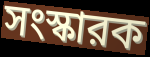
সংস্কারক